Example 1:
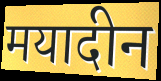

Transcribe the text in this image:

मयादीन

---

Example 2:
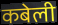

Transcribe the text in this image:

कबेली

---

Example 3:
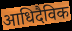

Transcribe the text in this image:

आधिदैविक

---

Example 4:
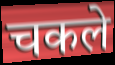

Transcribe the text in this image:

चकले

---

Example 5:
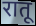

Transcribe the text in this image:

रातू